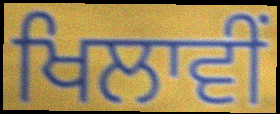
ਖਿਲਾਵੀਂ